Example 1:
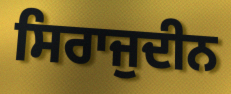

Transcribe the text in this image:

ਸਿਰਾਜੁਦੀਨ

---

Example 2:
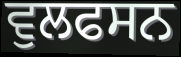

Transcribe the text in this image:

ਵੁਲਫਸਨ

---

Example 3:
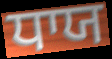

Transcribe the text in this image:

ਧਾਯ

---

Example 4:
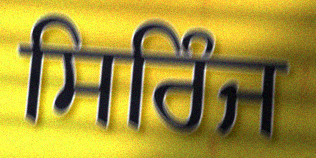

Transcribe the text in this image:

ਸਿਰਿੰਜ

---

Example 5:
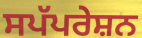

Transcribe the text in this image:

ਸਪੱਪਰੇਸ਼ਨ